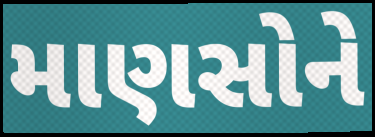
માણસોને